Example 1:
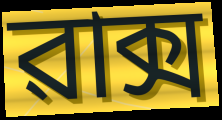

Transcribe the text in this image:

ৱাক্স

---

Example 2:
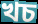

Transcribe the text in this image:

খচ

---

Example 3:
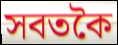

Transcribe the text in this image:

সবতকৈ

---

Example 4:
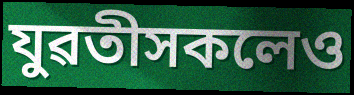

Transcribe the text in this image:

যুৱতীসকলেও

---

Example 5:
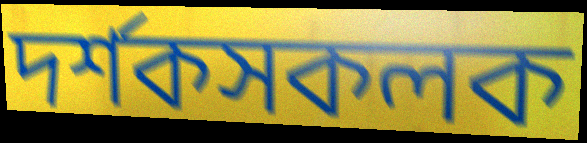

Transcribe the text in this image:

দৰ্শকসকলক